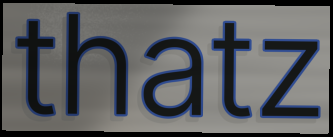
thatz